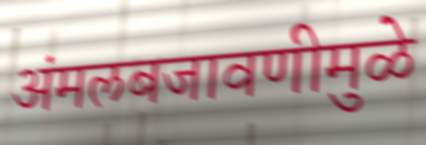
अंमलबजावणीमुळे